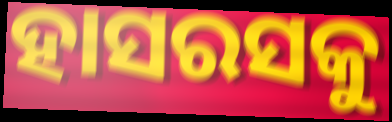
ହାସରସକୁ